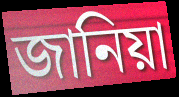
জানিয়া